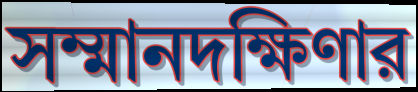
সম্মানদক্ষিণার